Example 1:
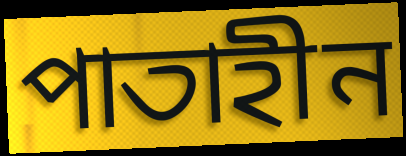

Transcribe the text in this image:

পাতাহীন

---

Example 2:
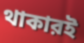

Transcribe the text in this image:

থাকারই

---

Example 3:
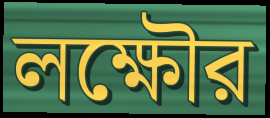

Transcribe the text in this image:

লক্ষৌর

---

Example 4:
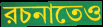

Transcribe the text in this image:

রচনাতেও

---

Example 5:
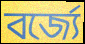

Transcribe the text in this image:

বর্জ্যে